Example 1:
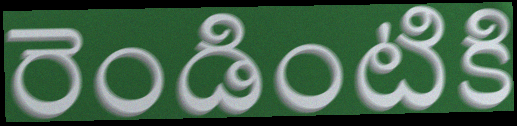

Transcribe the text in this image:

రెండింటికి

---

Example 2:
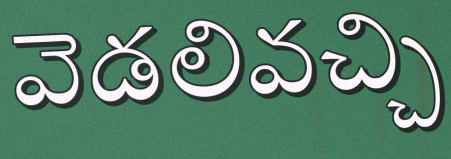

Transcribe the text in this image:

వెడలివచ్చి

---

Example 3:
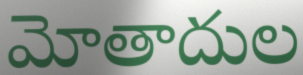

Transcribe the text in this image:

మోతాదుల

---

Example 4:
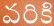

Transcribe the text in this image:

వరికి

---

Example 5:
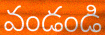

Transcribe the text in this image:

వండండి